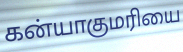
கன்யாகுமரியை